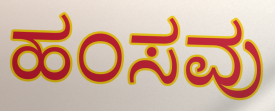
ಹಂಸವು